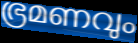
ഭ്രമണവും